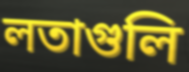
লতাগুলি